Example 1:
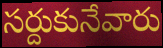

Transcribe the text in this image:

సర్దుకునేవారు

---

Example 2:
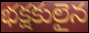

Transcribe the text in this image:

భక్షకులైన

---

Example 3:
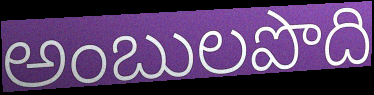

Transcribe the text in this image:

అంబులపొది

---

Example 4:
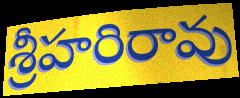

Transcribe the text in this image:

శ్రీహరిరావు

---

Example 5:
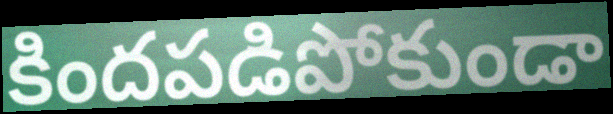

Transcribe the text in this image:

కిందపడిపోకుండా